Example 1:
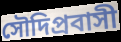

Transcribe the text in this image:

সৌদিপ্রবাসী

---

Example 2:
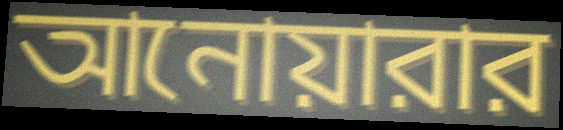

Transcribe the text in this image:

আনোয়ারার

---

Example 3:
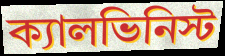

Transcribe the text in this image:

ক্যালভিনিস্ট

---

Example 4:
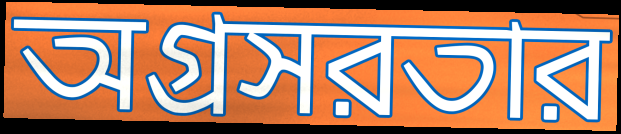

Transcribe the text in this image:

অগ্রসরতার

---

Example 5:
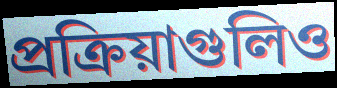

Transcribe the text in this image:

প্রক্রিয়াগুলিও